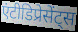
एंटीडिप्रेसेंट्स